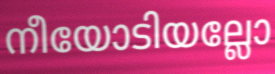
നീയോടിയല്ലോ